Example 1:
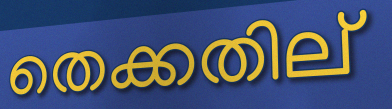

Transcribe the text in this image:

തെക്കതില്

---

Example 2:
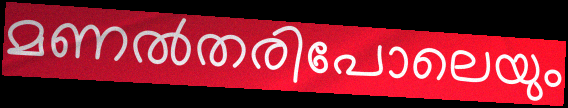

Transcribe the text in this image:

മണൽതരിപോലെയും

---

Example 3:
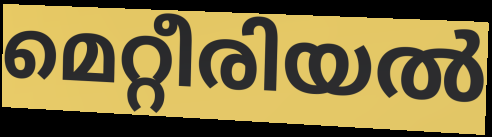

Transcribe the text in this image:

മെറ്റീരിയൽ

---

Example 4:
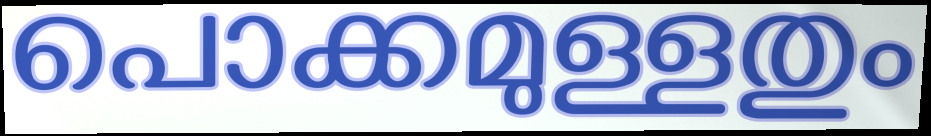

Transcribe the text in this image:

പൊക്കമുള്ളതും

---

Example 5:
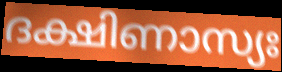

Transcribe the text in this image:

ദക്ഷിണാസ്യഃ